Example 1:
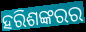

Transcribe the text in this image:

ହରିଶଙ୍କରର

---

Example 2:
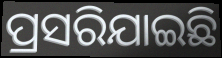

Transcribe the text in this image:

ପ୍ରସରିଯାଇଛି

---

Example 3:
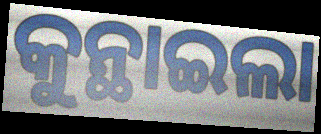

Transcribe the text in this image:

କୁନ୍ଥାଇଲା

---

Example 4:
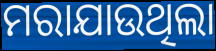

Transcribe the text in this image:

ମରାଯାଉଥିଲା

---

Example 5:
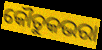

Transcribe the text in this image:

କୌତୁକଭରା